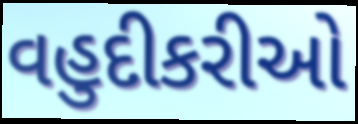
વહુદીકરીઓ